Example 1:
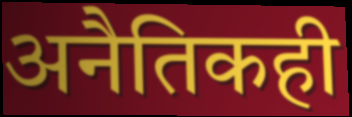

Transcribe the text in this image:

अनैतिकही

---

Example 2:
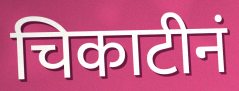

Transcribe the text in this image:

चिकाटीनं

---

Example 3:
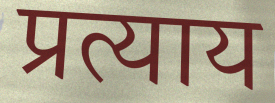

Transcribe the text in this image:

प्रत्याय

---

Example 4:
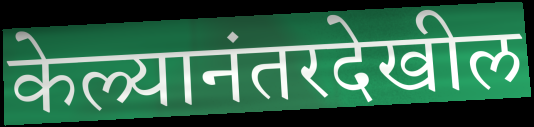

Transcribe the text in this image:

केल्यानंतरदेखील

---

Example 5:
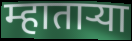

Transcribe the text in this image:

म्हातार्‍या